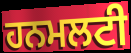
ਹਨਮਲਟੀ